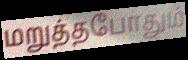
மறுத்தபோதும்